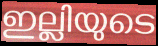
ഇല്ലിയുടെ